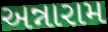
અન્નારામ